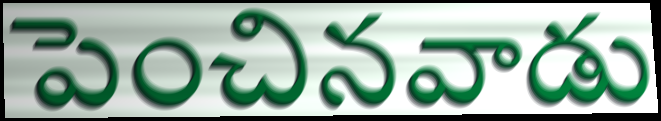
పెంచినవాడు